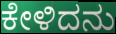
ಕೇಳಿದನು